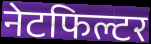
नेटफिल्टर